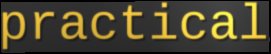
practical